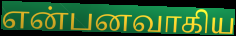
என்பனவாகிய